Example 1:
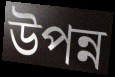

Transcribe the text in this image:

উপন্ন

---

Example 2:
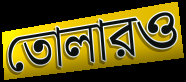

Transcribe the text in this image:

তোলারও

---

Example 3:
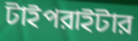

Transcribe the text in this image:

টাইপরাইটার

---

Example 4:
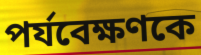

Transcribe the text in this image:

পর্যবেক্ষণকে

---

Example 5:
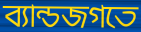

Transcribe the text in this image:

ব্যান্ডজগতে